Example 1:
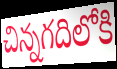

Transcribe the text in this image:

చిన్నగదిలోకి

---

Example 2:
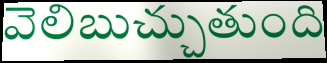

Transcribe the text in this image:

వెలిబుచ్చుతుంది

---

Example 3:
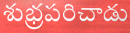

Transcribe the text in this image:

శుభ్రపరిచాడు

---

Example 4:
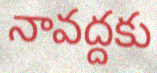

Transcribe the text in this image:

నావద్దకు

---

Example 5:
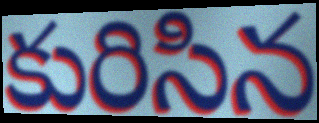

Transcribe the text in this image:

కురిసిన